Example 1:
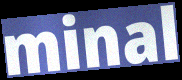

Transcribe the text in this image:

minal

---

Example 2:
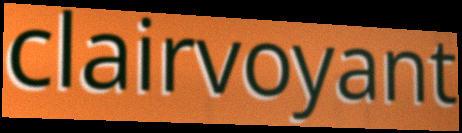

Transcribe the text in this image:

clairvoyant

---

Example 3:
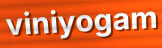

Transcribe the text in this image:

viniyogam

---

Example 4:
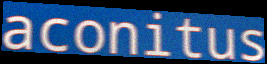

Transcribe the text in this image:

aconitus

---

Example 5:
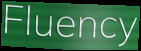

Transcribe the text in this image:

Fluency